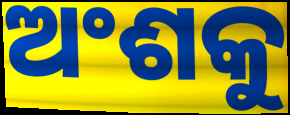
ଅଂଶକୁ